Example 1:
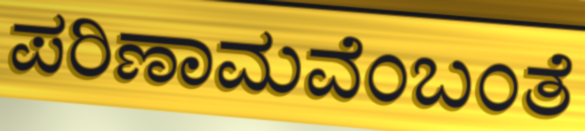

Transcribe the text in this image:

ಪರಿಣಾಮವೆಂಬಂತೆ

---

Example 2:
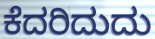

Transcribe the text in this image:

ಕೆದರಿದುದು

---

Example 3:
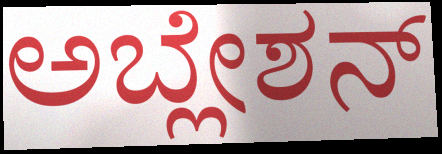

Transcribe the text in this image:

ಅಬ್ಲೇಶನ್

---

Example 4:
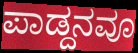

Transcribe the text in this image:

ಪಾಡ್ದನವೂ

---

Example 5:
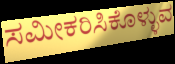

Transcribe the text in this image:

ಸಮೀಕರಿಸಿಕೊಳ್ಳುವ